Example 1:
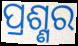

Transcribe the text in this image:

ପ୍ରଶ୍ଣର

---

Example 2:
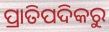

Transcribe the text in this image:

ପ୍ରାତିପଦିକରୁ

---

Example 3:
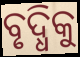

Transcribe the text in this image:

ବୃଦ୍ଧିକୁ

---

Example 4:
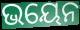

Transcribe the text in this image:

ଭୟେନ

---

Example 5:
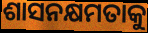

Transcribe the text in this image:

ଶାସନକ୍ଷମତାକୁ